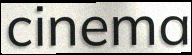
cinema